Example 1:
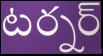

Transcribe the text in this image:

టర్నర్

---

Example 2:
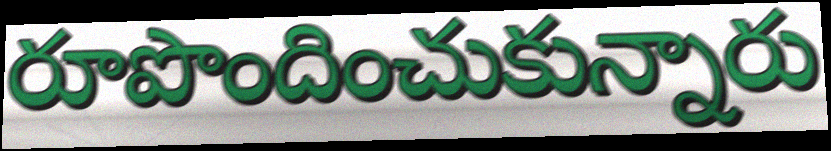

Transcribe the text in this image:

రూపొందించుకున్నారు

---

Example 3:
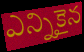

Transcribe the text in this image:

ఎన్నికైన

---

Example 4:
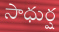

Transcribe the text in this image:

సాధుర్ష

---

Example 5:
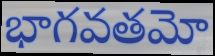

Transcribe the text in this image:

భాగవతమో